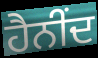
ਹੈਨੀਂਦ